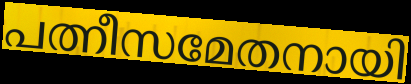
പത്നീസമേതനായി